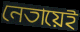
নেতায়েই